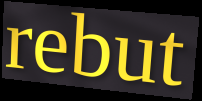
rebut